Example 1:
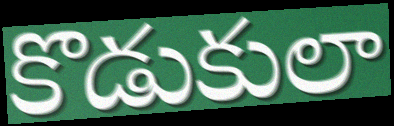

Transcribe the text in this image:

కొడుకులా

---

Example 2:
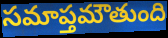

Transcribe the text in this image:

సమాప్తమౌతుంది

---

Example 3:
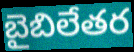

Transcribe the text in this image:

బైబిలేతర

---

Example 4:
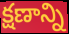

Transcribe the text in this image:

క్షణాన్ని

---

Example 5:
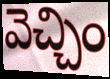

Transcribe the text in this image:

వెచ్చిం